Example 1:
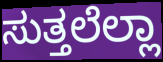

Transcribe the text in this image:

ಸುತ್ತಲೆಲ್ಲಾ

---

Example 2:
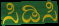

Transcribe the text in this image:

ಸಿಡಿಸಿ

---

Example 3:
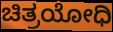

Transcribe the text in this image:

ಚಿತ್ರಯೋಧಿ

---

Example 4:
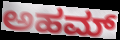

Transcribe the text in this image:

ಅಹಮ್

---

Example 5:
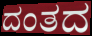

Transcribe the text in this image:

ದಂತದ